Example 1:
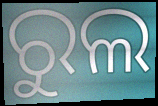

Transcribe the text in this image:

ରୁଲ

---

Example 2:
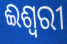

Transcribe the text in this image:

ଈଶ୍ଵରୀ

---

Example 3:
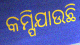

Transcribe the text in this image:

କମ୍ପିଯାଉଛି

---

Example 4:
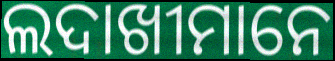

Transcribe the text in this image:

ଲଦାଖୀମାନେ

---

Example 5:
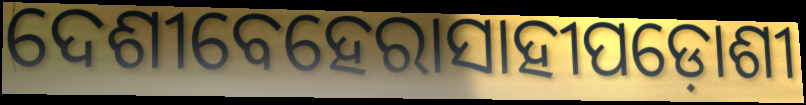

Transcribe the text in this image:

ଦେଶୀବେହେରାସାହୀପଡ଼ୋଶୀ